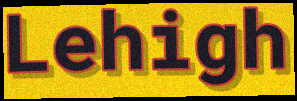
Lehigh